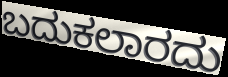
ಬದುಕಲಾರದು